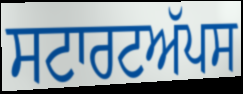
ਸਟਾਰਟਅੱਪਸ